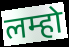
लम्हो